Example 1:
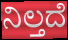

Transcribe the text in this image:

ನಿಲ್ತದೆ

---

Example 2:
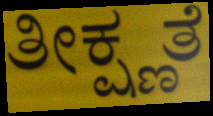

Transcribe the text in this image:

ತೀಕ್ಷ್ಣತೆ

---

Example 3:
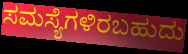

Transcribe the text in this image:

ಸಮಸ್ಯೆಗಳಿರಬಹುದು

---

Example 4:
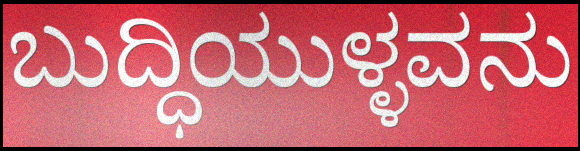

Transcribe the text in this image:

ಬುದ್ಧಿಯುಳ್ಳವನು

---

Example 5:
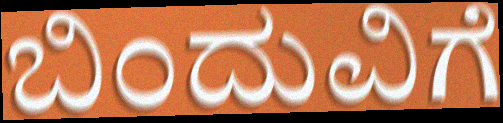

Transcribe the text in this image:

ಬಿಂದುವಿಗೆ